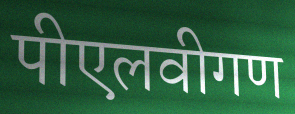
पीएलवीगण